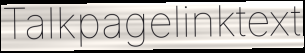
Talkpagelinktext